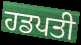
ਹਡਪਤੀ